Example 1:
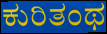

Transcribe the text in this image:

ಕುರಿತಂಥ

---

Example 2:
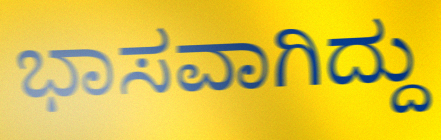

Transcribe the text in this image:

ಭಾಸವಾಗಿದ್ದು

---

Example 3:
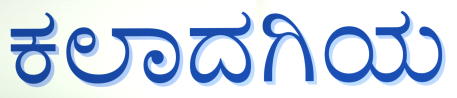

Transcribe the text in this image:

ಕಲಾದಗಿಯ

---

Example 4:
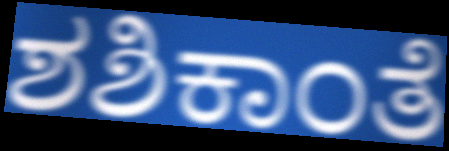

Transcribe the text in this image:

ಶಶಿಕಾಂತೆ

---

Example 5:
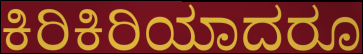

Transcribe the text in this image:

ಕಿರಿಕಿರಿಯಾದರೂ